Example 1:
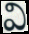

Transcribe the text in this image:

వి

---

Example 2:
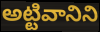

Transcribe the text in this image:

అట్టివానిని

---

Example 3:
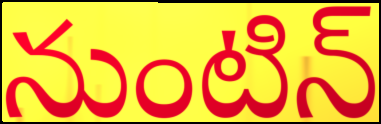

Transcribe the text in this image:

నుంటిన్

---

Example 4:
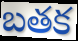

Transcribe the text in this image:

బతక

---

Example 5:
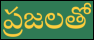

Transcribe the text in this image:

ప్రజలతో